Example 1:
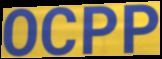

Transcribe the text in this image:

OCPP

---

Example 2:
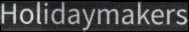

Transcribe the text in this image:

Holidaymakers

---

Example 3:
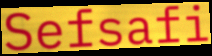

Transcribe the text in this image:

Sefsafi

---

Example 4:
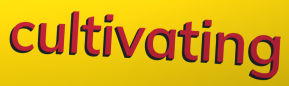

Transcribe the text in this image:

cultivating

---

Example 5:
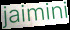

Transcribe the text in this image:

jaimini